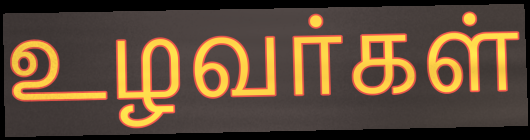
உழவர்கள்